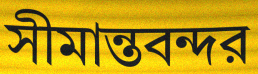
সীমান্তবন্দর